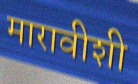
मारावीशी